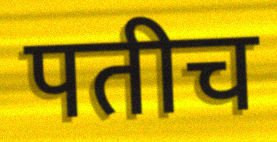
पतीच